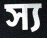
স্য